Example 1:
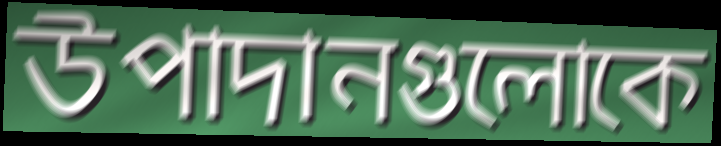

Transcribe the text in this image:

উপাদানগুলোকে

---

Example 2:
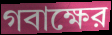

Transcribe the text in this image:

গবাক্ষের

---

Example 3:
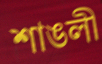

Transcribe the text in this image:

শাঙলী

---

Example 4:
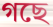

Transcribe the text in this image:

গছে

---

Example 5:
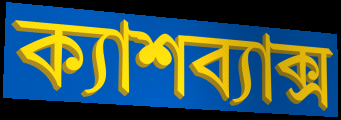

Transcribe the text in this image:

ক্যাশব্যাক্স